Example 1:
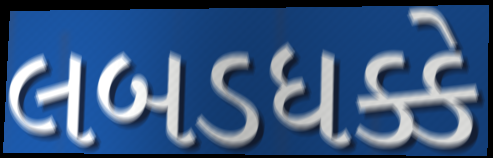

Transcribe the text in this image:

લબડધક્કે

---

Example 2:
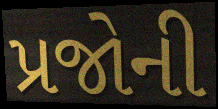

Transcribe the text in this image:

પ્રજોની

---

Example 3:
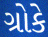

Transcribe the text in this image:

ગ્રોકે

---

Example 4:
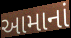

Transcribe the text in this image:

આમાનાં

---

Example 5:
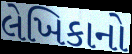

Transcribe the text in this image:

લેખિકાનો